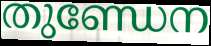
തുണ്ഡേന